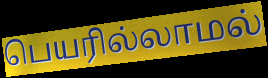
பெயரில்லாமல்